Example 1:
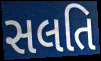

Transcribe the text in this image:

સલતિ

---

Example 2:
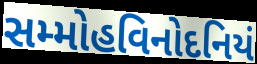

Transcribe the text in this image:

સમ્મોહવિનોદનિયં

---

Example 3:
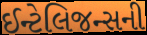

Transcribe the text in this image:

ઈન્ટેલિજન્સની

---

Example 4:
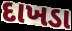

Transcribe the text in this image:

દાખડા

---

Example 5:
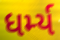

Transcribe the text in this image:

ધર્મ્ય